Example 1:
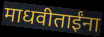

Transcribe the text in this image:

माधवीताईंना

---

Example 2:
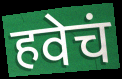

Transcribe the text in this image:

हवेचं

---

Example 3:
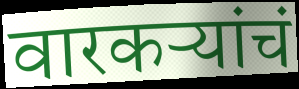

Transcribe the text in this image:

वारकऱ्यांचं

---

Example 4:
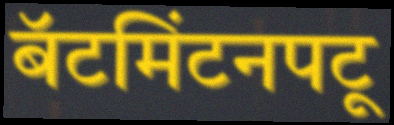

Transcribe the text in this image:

बॅटमिंटनपटू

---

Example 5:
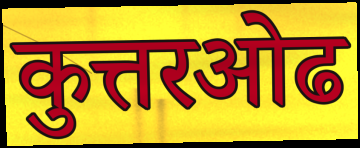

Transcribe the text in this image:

कुत्तरओढ